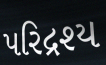
પરિદ્રશ્ય